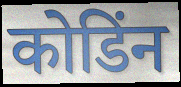
कोडिंन